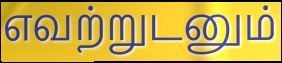
எவற்றுடனும்